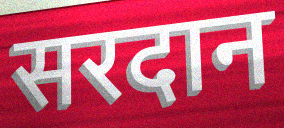
सरदान